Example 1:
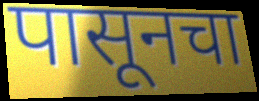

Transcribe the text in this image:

पासूनचा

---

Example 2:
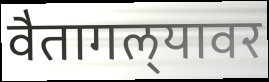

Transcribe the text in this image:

वैतागल्यावर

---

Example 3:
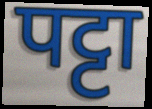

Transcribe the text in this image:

पट्टा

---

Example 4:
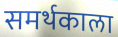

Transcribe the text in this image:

समर्थकाला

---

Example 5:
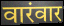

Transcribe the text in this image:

वारंवार